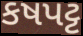
કષપટ્ટ